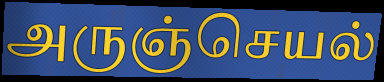
அருஞ்செயல்